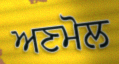
ਅਣਮੋਲ